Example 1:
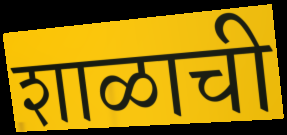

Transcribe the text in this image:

शाळाची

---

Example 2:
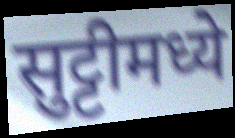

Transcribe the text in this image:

सुट्टीमध्ये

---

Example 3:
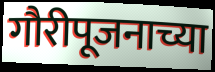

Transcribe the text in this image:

गौरीपूजनाच्या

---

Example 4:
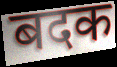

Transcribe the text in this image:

बदक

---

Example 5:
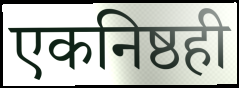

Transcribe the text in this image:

एकनिष्ठही